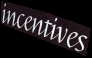
incentives